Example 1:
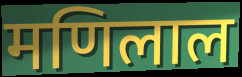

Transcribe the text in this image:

मणिलाल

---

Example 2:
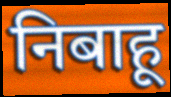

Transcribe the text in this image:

निबाहू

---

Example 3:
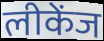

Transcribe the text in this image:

लीकेंज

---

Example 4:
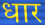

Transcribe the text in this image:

धार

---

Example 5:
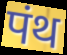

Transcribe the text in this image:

पंथ